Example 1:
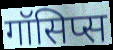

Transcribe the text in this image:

गॉसिप्स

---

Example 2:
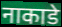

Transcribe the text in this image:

नाकाडे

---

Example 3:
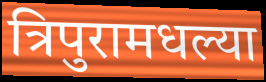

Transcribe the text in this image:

त्रिपुरामधल्या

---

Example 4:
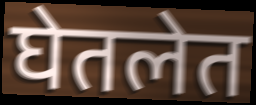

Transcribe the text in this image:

घेतलेत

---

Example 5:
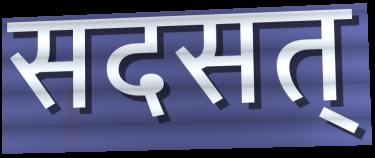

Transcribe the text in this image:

सदसत्